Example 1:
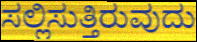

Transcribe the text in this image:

ಸಲ್ಲಿಸುತ್ತಿರುವುದು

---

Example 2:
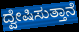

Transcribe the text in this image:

ದ್ವೇಷಿಸುತ್ತಾನೆ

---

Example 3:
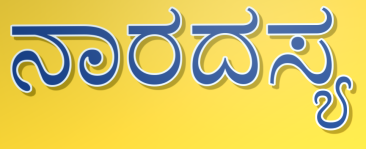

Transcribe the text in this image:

ನಾರದಸ್ಯ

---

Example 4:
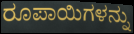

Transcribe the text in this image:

ರೂಪಾಯಿಗಳನ್ನು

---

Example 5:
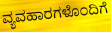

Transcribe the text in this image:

ವ್ಯವಹಾರಗಳೊಂದಿಗೆ